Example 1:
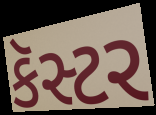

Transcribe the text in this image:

કૅસ્ટર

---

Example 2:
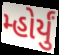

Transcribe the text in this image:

મ્હોર્યું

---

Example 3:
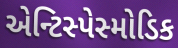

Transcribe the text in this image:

એન્ટિસ્પેસ્મોડિક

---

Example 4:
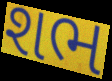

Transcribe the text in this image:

શભ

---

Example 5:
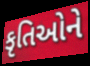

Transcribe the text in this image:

કૃતિઓને